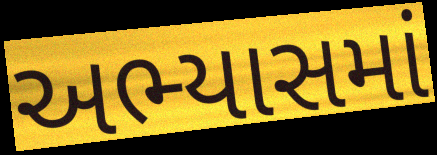
અભ્યાસમાં